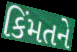
કિંમતને